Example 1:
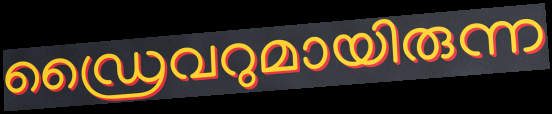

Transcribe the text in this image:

ഡ്രൈവറുമായിരുന്ന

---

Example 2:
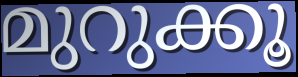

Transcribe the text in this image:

മുറുക്കൂ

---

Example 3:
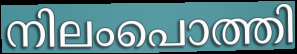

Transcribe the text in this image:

നിലംപൊത്തി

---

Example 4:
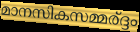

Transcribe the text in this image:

മാനസികസമ്മര്ദ്ദം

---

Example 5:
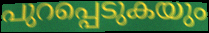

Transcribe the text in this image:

പുറപ്പെടുകയും